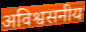
अविश्वसनीय